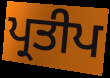
ਪ੍ਰਤੀਪ